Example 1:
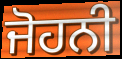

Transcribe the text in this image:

ਜੋਹਨੀ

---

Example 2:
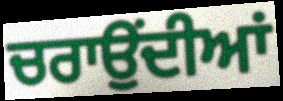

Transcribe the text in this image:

ਚਰਾਉਂਦੀਆਂ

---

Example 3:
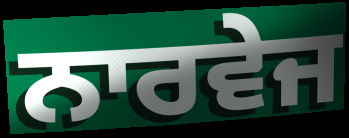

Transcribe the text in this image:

ਨਾਰਵੇਜ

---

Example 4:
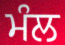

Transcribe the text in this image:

ਮੰਲ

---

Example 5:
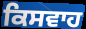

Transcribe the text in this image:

ਕਿਸਵਾਹ